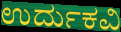
ಉರ್ದುಕವಿ